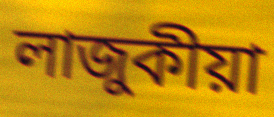
লাজুকীয়া